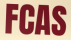
FCAS